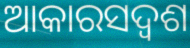
ଆକାରସଦ୍ୱଶ